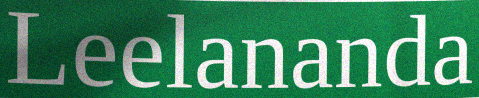
Leelananda